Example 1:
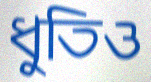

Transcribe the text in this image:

ধুতিও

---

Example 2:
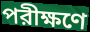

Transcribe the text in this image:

পরীক্ষণে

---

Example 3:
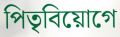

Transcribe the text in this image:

পিতৃবিয়োগে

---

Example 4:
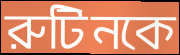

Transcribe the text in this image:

রুটিনকে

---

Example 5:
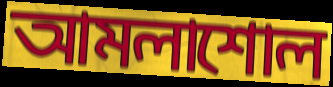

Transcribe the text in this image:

আমলাশোল